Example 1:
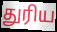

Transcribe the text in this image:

துரிய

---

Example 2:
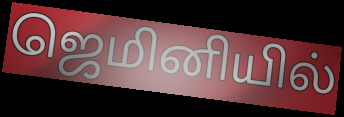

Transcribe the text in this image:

ஜெமினியில்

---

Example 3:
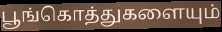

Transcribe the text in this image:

பூங்கொத்துகளையும்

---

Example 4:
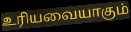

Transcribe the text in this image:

உரியவையாகும்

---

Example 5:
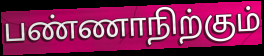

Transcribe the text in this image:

பண்ணாநிற்கும்